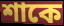
শাকে